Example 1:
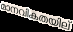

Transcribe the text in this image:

മാനവികതയില്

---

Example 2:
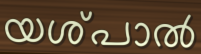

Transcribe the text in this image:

യശ്പാൽ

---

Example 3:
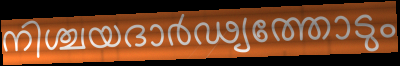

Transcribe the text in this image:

നിശ്ചയദാർഢ്യത്തോടും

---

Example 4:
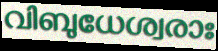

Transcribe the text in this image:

വിബുധേശ്വരാഃ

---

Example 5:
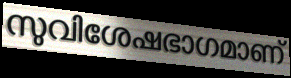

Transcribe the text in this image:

സുവിശേഷഭാഗമാണ്